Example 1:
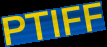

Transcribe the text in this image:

PTIFF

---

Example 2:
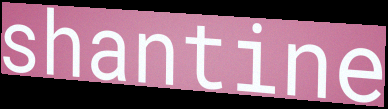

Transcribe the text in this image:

shantine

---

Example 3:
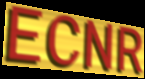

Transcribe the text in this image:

ECNR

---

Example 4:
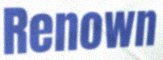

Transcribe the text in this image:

Renown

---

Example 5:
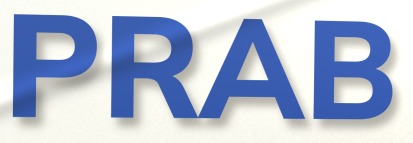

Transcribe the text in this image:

PRAB